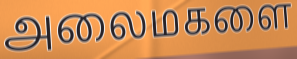
அலைமகளை